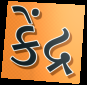
કેંદ્ર